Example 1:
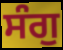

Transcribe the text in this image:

ਸੰਗੁ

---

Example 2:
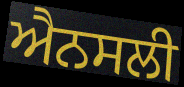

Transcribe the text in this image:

ਐਨਸਲੀ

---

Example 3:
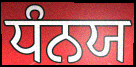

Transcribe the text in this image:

ਧੰਨਯ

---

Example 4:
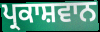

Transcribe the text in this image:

ਪ੍ਰਕਾਸ਼ਵਾਨ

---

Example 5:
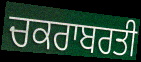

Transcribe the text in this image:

ਚਕਰਾਬਰਤੀ